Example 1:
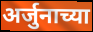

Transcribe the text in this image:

अर्जुनाच्या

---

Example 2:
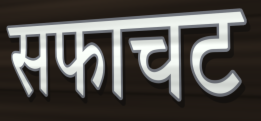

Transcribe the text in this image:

सफाचट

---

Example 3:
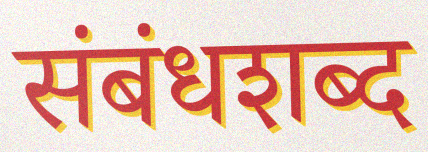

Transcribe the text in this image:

संबंधशब्द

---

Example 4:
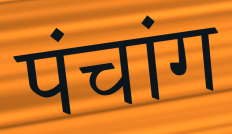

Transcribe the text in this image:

पंचांग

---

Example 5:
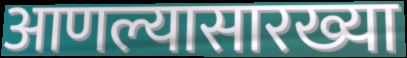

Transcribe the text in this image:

आणल्यासारख्या